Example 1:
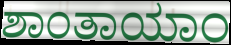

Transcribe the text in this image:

ಶಾಂತಾಯಾಂ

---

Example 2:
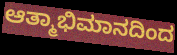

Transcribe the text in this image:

ಆತ್ಮಾಭಿಮಾನದಿಂದ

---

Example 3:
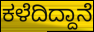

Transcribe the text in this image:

ಕಳೆದಿದ್ದಾನೆ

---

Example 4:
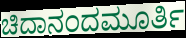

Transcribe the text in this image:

ಚಿದಾನಂದಮೂರ್ತಿ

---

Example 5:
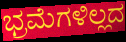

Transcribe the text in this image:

ಭ್ರಮೆಗಳಿಲ್ಲದ